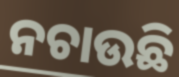
ନଚାଉଛି